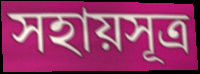
সহায়সূত্র